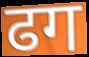
ढग